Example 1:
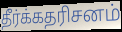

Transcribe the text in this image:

தீர்க்கதரிசனம்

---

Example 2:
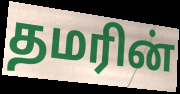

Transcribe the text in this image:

தமரின்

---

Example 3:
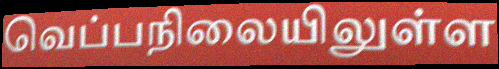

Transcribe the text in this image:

வெப்பநிலையிலுள்ள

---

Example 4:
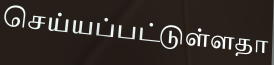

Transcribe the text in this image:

செய்யப்பட்டுள்ளதா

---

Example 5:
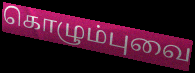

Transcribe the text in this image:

கொழும்புவை